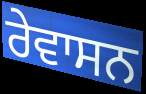
ਰੇਵਾਸਨ